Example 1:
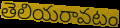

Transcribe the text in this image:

తెలియరావటం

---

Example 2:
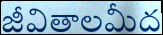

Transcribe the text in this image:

జీవితాలమీద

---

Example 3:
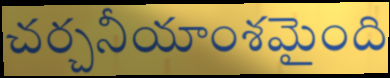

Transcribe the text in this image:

చర్చనీయాంశమైంది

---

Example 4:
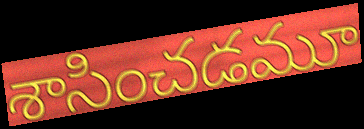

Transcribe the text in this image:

శాసించడమూ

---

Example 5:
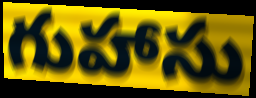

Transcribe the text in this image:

గుహాసు